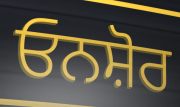
ਓਨਸ਼ੋਰ